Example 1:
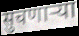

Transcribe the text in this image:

सुचणाऱ्या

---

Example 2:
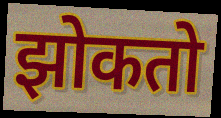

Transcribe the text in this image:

झोकतो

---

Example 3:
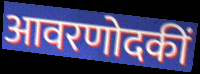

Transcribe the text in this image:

आवरणोदकीं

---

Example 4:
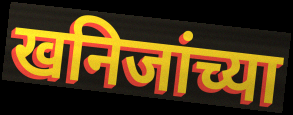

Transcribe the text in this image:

खनिजांच्या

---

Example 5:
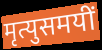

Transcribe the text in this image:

मृत्युसमयीं